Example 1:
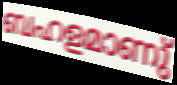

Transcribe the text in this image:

ബഹളമാണു്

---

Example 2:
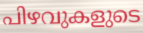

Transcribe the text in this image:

പിഴവുകളുടെ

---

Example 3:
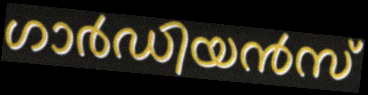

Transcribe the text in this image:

ഗാർഡിയൻസ്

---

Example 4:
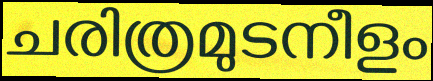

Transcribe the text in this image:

ചരിത്രമുടനീളം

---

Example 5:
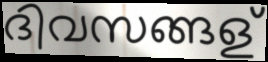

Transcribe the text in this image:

ദിവസങ്ങള്